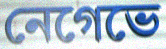
নেগেভে